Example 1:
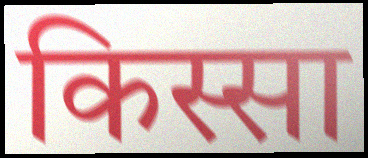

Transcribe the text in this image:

किस्सा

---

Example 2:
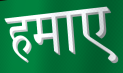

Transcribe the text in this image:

हमाए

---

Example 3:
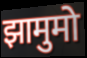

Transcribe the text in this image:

झामुमो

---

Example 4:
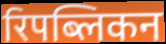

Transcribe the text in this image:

रिपब्लिकन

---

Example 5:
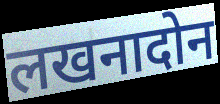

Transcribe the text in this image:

लखनादोन